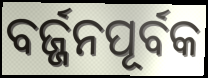
ବର୍ଜ୍ଜନପୂର୍ବକ